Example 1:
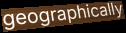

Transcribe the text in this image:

geographically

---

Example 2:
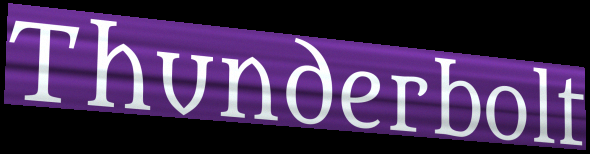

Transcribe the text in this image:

Thunderbolt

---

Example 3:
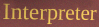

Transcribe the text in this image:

Interpreter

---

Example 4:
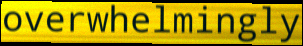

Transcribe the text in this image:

overwhelmingly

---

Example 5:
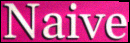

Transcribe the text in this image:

Naive